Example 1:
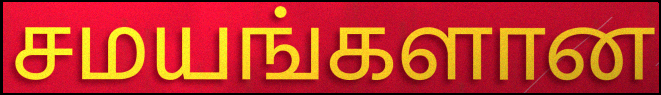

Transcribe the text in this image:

சமயங்களான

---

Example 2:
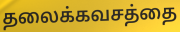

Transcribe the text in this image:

தலைக்கவசத்தை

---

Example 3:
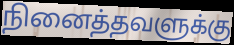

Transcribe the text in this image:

நினைத்தவளுக்கு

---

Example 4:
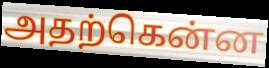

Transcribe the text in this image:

அதற்கென்ன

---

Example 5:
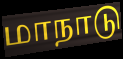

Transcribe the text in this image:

மாநாடு